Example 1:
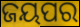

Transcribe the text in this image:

ଜୟପର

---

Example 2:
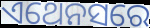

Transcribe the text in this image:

ଏଥେନସରେ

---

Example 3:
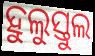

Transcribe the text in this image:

ହୁଲୁସ୍ତୁଲ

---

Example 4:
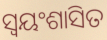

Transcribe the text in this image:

ସ୍ବୟଂଶାସିତ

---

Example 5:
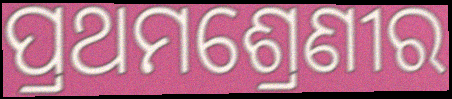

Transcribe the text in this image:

ପ୍ରଥମଶ୍ରେଣୀର